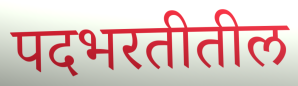
पदभरतीतील